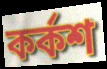
কৰ্কশ